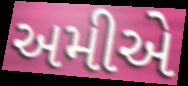
અમીએ